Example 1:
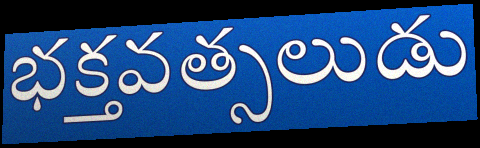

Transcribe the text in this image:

భక్తవత్సలుడు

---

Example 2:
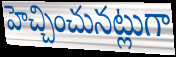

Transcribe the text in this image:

హెచ్చించునట్లుగా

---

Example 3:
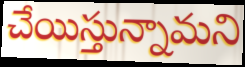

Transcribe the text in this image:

చేయిస్తున్నామని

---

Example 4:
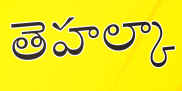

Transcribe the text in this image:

తెహల్కా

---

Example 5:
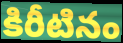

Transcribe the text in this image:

కిరీటినం